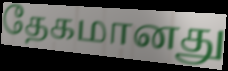
தேகமானது